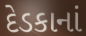
દેડકાનાં